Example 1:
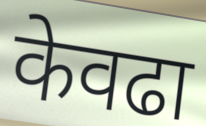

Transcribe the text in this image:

केवढा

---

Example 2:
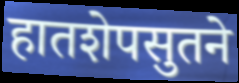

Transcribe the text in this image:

हातशेपसुतने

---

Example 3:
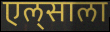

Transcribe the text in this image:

एल्साला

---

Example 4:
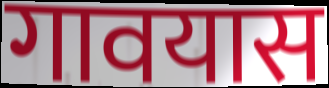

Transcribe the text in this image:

गावयास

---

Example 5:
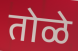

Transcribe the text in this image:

तोळे